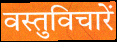
वस्तुविचारें